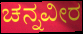
ಚನ್ನವೀರ